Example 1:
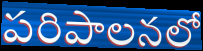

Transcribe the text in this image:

పరిపాలనలో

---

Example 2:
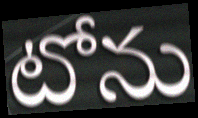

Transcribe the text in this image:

టోను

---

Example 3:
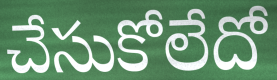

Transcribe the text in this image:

చేసుకోలేదో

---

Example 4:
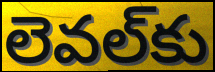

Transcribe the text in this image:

లెవల్‌కు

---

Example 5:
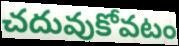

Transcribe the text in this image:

చదువుకోవటం